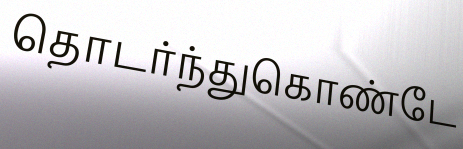
தொடர்ந்துகொண்டே